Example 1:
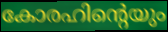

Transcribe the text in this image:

കോരഹിന്റെയും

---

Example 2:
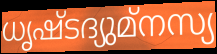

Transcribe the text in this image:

ധൃഷ്ടദ്യുമ്നസ്യ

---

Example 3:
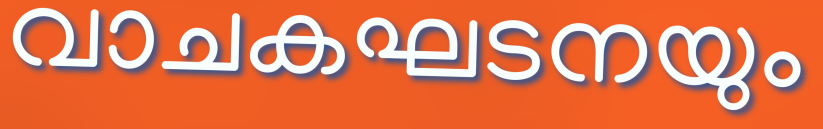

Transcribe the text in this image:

വാചകഘടനയും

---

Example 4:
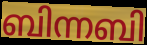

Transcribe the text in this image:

ബിന്നബി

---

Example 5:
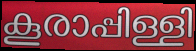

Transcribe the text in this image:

കൂരാപ്പിള്ളി